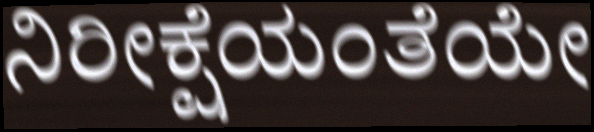
ನಿರೀಕ್ಷೆಯಂತೆಯೇ